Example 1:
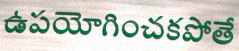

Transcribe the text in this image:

ఉపయోగించకపోతే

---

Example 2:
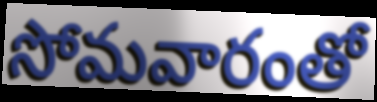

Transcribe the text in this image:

సోమవారంతో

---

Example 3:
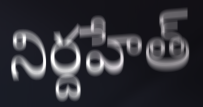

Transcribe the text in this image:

నిర్దహేత్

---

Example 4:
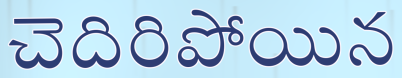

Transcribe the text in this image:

చెదిరిపోయిన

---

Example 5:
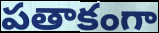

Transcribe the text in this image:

పతాకంగా